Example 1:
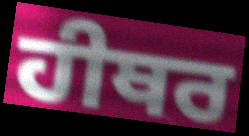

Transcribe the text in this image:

ਹੀਥਰ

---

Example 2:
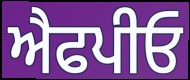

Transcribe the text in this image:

ਐਫਪੀਓ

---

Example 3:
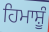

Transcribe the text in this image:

ਹਿਮਾਸ਼ੂੰ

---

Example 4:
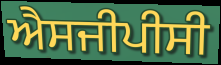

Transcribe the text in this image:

ਐਸਜੀਪੀਸੀ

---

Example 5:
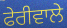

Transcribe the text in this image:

ਫੇਰੀਵਾਲੇ